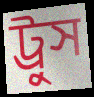
ট্রুস